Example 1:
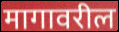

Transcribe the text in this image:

मागावरील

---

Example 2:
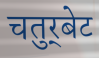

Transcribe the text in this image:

चतुर्बेट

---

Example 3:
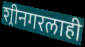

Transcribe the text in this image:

श्रीनगरलाही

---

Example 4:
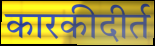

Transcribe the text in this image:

कारकीदीर्त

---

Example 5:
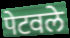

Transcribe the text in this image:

पेटवले